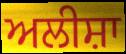
ਅਲੀਸ਼ਾ